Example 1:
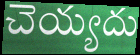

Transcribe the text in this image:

చెయ్యదు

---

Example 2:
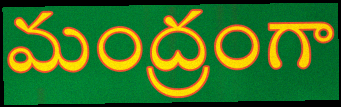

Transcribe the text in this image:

మంద్రంగా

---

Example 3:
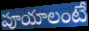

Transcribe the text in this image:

పూయాలంటే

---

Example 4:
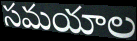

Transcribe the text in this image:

సమయాల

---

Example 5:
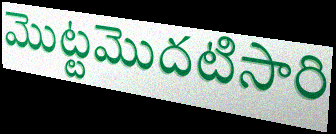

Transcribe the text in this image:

మొట్టమొదటిసారి